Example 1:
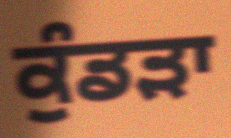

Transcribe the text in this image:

ਕੁੰਡੜਾ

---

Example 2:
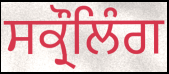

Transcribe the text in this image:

ਸਕ੍ਰੌਲਿੰਗ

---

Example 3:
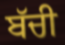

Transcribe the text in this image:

ਬੱਚੀ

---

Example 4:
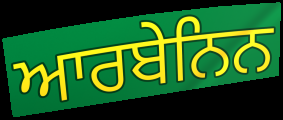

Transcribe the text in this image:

ਆਰਬੇਨਿਨ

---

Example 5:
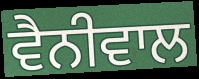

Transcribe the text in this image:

ਵੈਨੀਵਾਲ